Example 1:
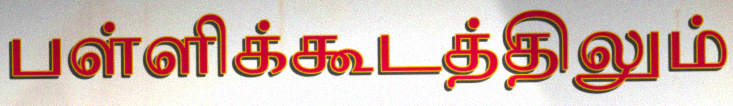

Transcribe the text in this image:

பள்ளிக்கூடத்திலும்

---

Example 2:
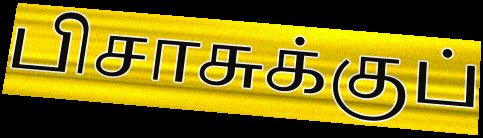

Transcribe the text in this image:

பிசாசுக்குப்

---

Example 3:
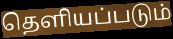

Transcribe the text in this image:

தெளியப்படும்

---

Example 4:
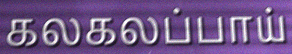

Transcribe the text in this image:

கலகலப்பாய்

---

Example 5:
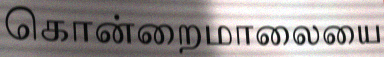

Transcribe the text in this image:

கொன்றைமாலையை